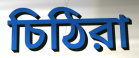
চিঠিরা